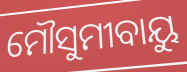
ମୌସୁମୀବାୟୁ